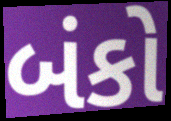
બંકો